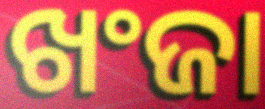
ଖଂଜା